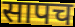
सापच